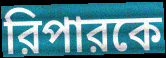
রিপারকে